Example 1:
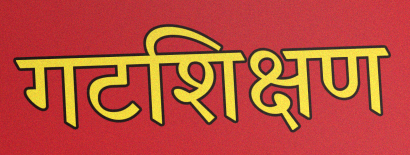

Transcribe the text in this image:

गटशिक्षण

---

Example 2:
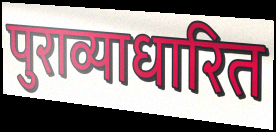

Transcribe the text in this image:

पुराव्याधारित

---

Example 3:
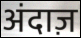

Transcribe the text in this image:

अंदाज़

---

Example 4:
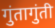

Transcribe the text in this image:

गुंतागुंती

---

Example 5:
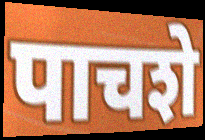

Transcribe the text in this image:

पाचशे